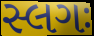
સ્લગઃ